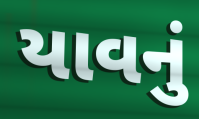
યાવનું